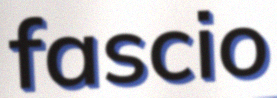
fascio